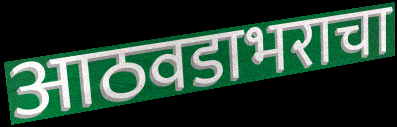
आठवडाभराचा